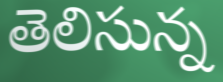
తెలిసున్న